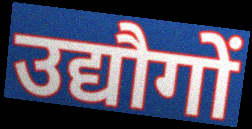
उद्यौगों